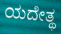
ಯದೇತ್ಥ